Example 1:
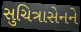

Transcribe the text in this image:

સુચિત્રાસેનને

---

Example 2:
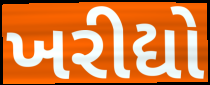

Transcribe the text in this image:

ખરીદ્યો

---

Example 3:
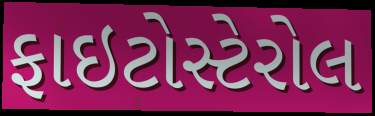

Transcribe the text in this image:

ફાઇટોસ્ટેરોલ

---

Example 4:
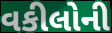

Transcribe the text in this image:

વકીલોની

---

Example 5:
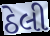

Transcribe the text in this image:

ઠેલી